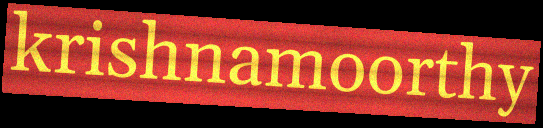
krishnamoorthy